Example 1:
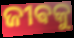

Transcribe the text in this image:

ଜୀଵକୁ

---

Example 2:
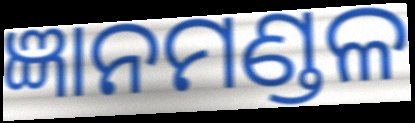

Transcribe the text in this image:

ଜ୍ଞାନମଣ୍ଡଳ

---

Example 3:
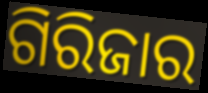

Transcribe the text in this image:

ଗିରିଜାର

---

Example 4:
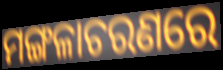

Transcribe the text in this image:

ମଙ୍ଗଳାଚରଣରେ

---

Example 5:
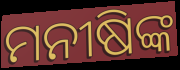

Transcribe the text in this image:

ମନୀଷିଙ୍କ